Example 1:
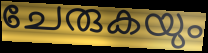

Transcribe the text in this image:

ചേരുകയും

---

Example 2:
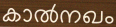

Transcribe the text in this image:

കാൽനഖം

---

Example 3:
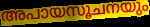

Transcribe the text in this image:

അപായസൂചനയും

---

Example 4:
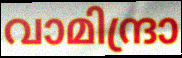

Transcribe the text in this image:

വാമിന്ദ്രാ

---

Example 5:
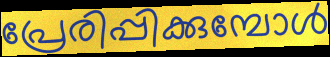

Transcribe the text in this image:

പ്രേരിപ്പിക്കുമ്പോൾ